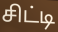
சிட்டி